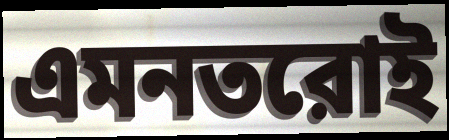
এমনতরোই